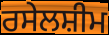
ਰਸੇਲਸ਼ੀਮ